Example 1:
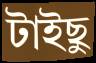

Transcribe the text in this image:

টাইছু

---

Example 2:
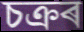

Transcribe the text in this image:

চক্ৰৰ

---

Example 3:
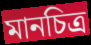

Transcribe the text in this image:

মানচিত্ৰ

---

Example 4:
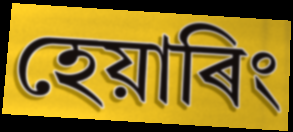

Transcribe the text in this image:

হেয়াৰিং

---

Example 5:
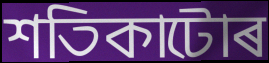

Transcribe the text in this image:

শতিকাটোৰ